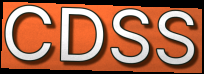
CDSS